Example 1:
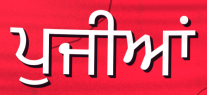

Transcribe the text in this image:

ਪੁਜੀਆਂ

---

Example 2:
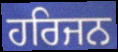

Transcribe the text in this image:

ਹਰਿਜਨ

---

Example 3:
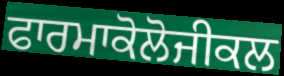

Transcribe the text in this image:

ਫਾਰਮਾਕੋਲੋਜੀਕਲ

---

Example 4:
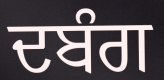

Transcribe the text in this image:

ਦਬੰਗ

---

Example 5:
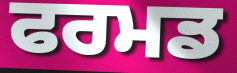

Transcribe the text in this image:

ਫਰਮਡ